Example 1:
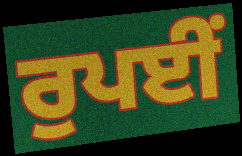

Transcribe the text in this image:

ਰੁਪਈਂ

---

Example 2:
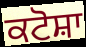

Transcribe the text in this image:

ਕਟੋਸ਼ਾ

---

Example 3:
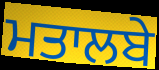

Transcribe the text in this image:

ਮਤਾਲਬੇ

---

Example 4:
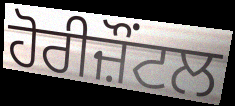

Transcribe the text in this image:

ਹੋਰੀਜ਼ੌਂਟਲ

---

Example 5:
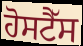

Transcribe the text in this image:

ਹੋਸਟੈੱਸ